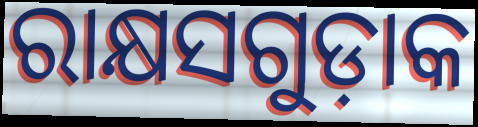
ରାକ୍ଷସଗୁଡ଼ାକ